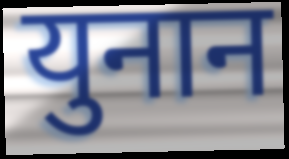
युनान